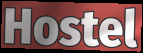
Hostel